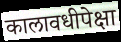
कालावधीपेक्षा